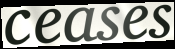
ceases